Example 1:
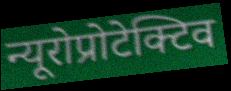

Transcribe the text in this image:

न्यूरोप्रोटेक्टिव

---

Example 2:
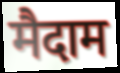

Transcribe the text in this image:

मैदाम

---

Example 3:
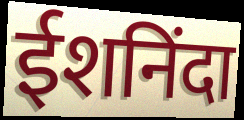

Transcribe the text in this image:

ईशनिंदा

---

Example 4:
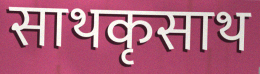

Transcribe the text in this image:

साथकृसाथ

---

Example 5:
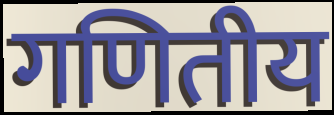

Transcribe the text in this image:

गणितीय